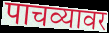
पाचव्यावर